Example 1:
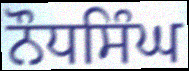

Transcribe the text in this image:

ਨੌਧਸਿੰਘ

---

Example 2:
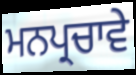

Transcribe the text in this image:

ਮਨਪ੍ਰਚਾਵੇ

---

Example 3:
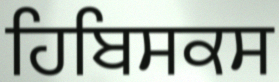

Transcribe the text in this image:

ਹਿਬਿਸਕਸ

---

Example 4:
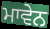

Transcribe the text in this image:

ਮਾਵੇਨ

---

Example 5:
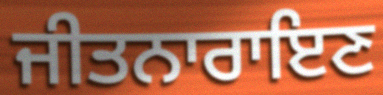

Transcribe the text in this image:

ਜੀਤਨਾਰਾਇਣ